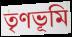
তৃণভূমি